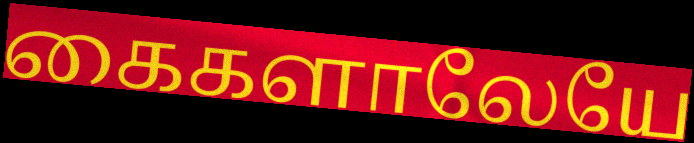
கைகளாலேயே